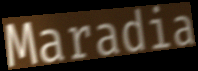
Maradia